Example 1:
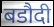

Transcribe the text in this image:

बडौदी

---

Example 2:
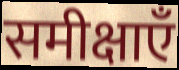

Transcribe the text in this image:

समीक्षाएँ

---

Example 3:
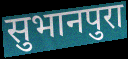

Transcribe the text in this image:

सुभानपुरा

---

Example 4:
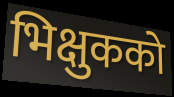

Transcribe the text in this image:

भिक्षुकको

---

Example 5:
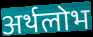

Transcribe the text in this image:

अर्थलोभ